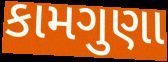
કામગુણા